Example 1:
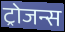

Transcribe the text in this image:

ट्रोजन्स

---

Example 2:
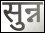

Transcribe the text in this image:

सुन्न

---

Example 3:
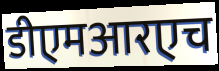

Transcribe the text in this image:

डीएमआरएच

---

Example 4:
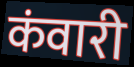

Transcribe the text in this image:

कंवारी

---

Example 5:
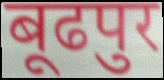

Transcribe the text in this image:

बूढपुर